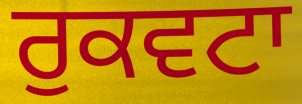
ਰੁਕਵਟਾ